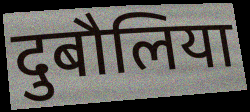
दुबौलिया